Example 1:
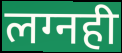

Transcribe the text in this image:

लग्नही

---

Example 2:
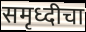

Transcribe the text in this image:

समृध्दीचा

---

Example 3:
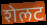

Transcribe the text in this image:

शेलट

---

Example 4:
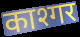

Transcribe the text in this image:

काश्गर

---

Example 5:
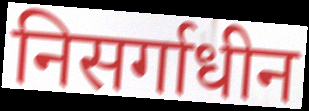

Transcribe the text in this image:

निसर्गाधीन